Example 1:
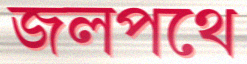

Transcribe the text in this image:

জলপথে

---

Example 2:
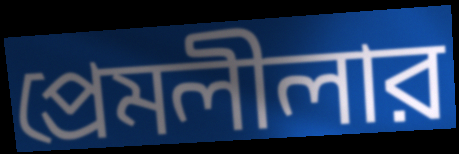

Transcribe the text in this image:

প্রেমলীলার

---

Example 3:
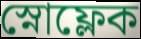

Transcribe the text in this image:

স্নোফ্লেক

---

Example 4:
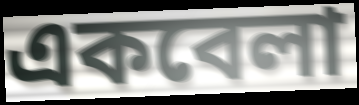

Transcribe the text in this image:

একবেলা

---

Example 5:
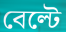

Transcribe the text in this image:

বেল্টে